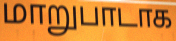
மாறுபாடாக